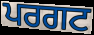
ਪਰਗਟ